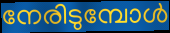
നേരിടുമ്പോൾ